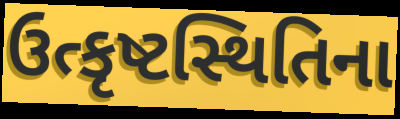
ઉત્કૃષ્ટસ્થિતિના